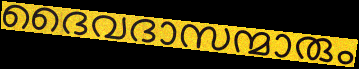
ദൈവദാസന്മാരും